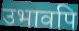
उभावपि